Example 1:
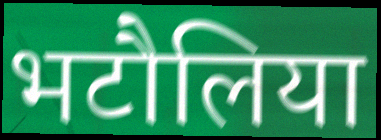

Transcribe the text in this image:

भटौलिया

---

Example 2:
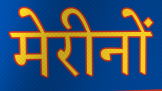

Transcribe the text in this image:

मेरीनों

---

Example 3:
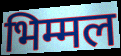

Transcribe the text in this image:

भिम्मल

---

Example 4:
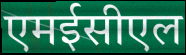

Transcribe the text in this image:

एमईसीएल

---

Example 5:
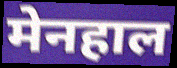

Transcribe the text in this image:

मेनहाल